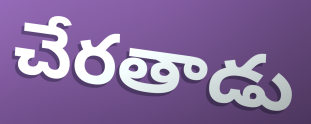
చేరతాడు